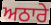
ਅਠਾਰੇ